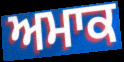
ਅਮਾਕ